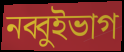
নব্বুইভাগ